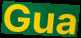
Gua